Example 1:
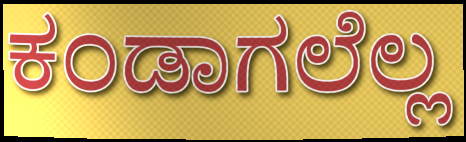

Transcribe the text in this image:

ಕಂಡಾಗಲೆಲ್ಲ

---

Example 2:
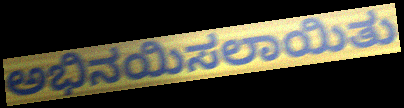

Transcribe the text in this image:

ಅಭಿನಯಿಸಲಾಯಿತು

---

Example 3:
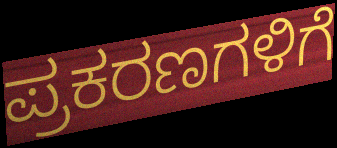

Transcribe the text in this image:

ಪ್ರಕರಣಗಳಿಗೆ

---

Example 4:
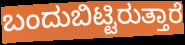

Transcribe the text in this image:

ಬಂದುಬಿಟ್ಟಿರುತ್ತಾರೆ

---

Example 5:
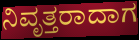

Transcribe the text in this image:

ನಿವೃತ್ತರಾದಾಗ